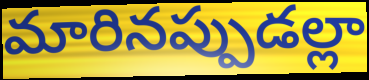
మారినప్పుడల్లా